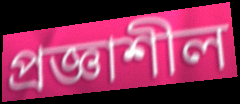
প্রজ্ঞাশীল